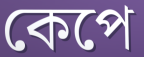
কেপে